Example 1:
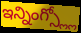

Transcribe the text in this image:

ఇన్నింగ్స్ల్లో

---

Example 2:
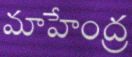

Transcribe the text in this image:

మాహేంద్ర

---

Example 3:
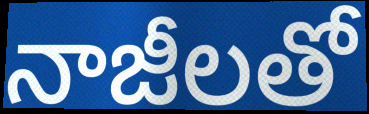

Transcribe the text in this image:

నాజీలతో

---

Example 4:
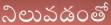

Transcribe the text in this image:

నిలువడంతో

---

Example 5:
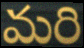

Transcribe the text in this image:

మరి